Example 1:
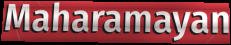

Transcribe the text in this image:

Maharamayan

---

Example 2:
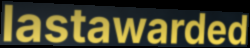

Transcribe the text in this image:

lastawarded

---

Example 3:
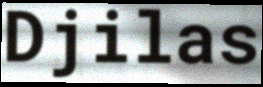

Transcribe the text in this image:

Djilas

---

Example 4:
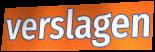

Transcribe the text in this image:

verslagen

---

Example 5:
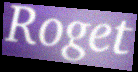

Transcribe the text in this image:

Roget